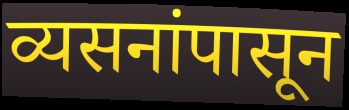
व्यसनांपासून